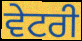
ਵੇਟਰੀ